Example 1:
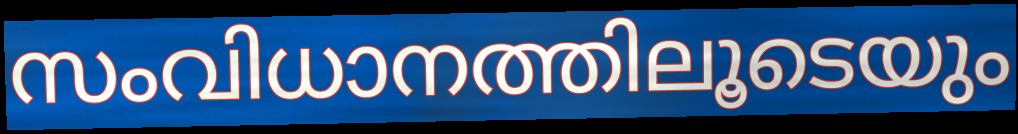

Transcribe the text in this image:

സംവിധാനത്തിലൂടെയും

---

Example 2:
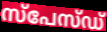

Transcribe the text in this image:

സ്പേസ്ഡ്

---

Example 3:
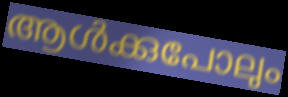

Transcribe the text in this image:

ആൾക്കുപോലും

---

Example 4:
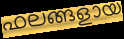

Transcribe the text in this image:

ഫലങ്ങളായ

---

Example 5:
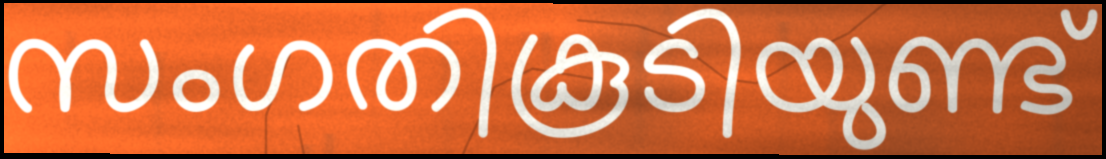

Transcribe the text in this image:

സംഗതികൂടിയുണ്ട്